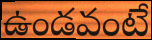
ఉండవంటే